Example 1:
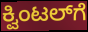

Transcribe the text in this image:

ಕ್ವಿಂಟಲ್‌ಗೆ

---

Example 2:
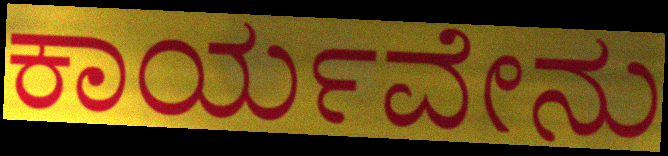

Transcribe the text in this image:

ಕಾರ್ಯವೇನು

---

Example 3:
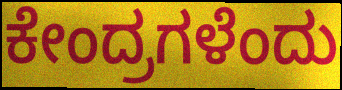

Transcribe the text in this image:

ಕೇಂದ್ರಗಳೆಂದು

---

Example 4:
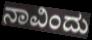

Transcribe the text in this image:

ನಾವಿಂದು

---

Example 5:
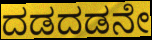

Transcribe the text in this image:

ದಡದಡನೇ